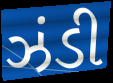
ઝંડી